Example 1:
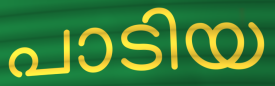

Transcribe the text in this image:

പാടിയ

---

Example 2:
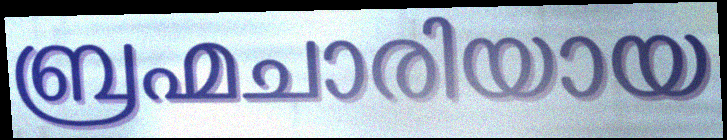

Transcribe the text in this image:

ബ്രഹ്മചാരിയായ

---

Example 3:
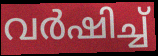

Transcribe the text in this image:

വർഷിച്ച്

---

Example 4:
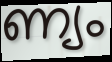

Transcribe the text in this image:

ണ്യം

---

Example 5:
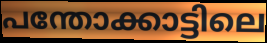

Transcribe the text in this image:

പന്തോക്കാട്ടിലെ